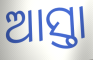
ଆସ୍ତା